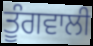
ਤੂੰਗਵਾਲੀ